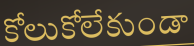
కోలుకోలేకుండా